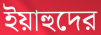
ইয়াহুদের